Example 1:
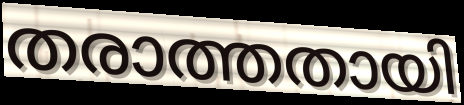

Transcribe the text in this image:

തരാത്തതായി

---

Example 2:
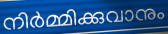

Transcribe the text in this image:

നിർമ്മിക്കുവാനും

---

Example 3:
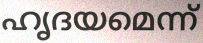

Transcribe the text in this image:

ഹൃദയമെന്ന്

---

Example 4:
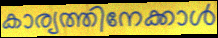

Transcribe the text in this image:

കാര്യത്തിനേക്കാൾ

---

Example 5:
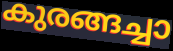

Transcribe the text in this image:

കുരങ്ങച്ചാ